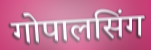
गोपालसिंग